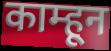
काम्हून